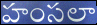
హంసలా